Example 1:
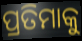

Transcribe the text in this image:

ପ୍ରତିମାକୁ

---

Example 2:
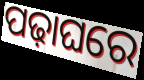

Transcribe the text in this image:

ପଢ଼ାଘରେ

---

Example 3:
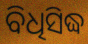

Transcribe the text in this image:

ବିଧିସିଦ୍ଧ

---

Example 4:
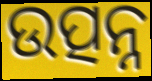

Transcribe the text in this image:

ଉତ୍ପନ୍ନ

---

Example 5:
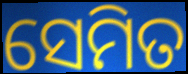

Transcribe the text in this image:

ସେମିତ